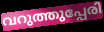
വറുത്തുപ്പേരി